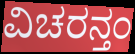
ವಿಚರನ್ತಂ